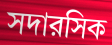
সদারসিক